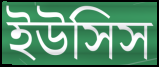
ইউসিস